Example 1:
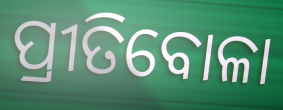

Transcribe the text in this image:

ପ୍ରୀତିବୋଳା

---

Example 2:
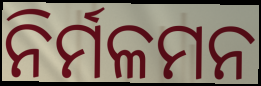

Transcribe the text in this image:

ନିର୍ମଳମନ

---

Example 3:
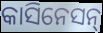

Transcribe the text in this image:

କାସିନେସନ୍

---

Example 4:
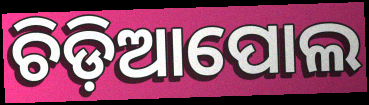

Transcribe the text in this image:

ଚିଡ଼ିଆପୋଲ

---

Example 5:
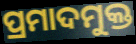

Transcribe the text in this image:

ପ୍ରମାଦମୁକ୍ତ